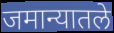
जमान्यातले